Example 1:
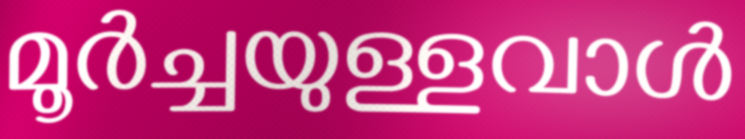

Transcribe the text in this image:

മൂർച്ചയുള്ളവാൾ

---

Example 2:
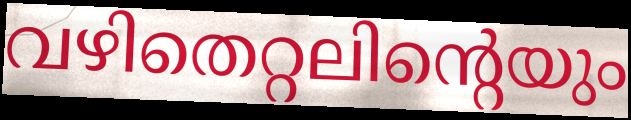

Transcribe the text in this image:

വഴിതെറ്റലിന്റെയും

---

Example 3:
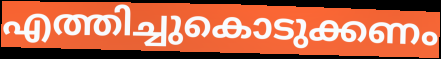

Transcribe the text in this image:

എത്തിച്ചുകൊടുക്കണം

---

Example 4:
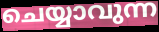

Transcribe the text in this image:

ചെയ്യാവുന്ന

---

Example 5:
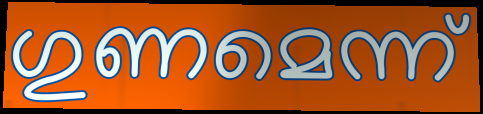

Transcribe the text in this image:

ഗുണമെന്ന്